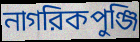
নাগরিকপুঞ্জি